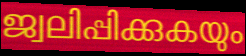
ജ്വലിപ്പിക്കുകയും